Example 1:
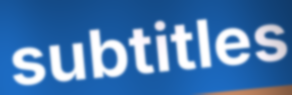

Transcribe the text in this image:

subtitles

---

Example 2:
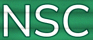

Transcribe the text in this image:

NSC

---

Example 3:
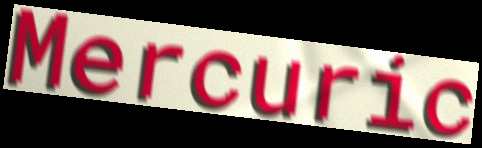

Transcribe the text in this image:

Mercuric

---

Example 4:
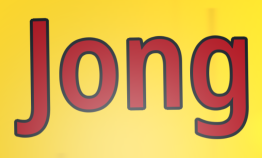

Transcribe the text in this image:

Jong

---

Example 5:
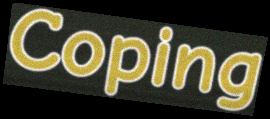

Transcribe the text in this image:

Coping